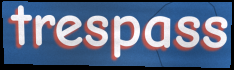
trespass